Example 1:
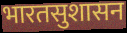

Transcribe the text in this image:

भारतसुशासन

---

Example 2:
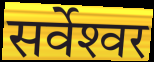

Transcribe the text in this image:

सर्वेश्‍वर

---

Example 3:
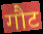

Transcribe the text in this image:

गौट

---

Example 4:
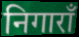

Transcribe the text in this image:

निगाराँ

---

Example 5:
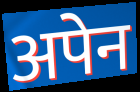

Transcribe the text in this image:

अपेन